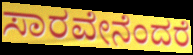
ಸಾರವೇನೆಂದರೆ